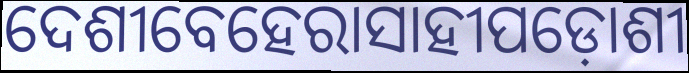
ଦେଶୀବେହେରାସାହୀପଡ଼ୋଶୀ